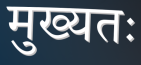
मुख्यतः